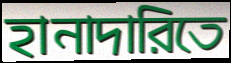
হানাদারিতে